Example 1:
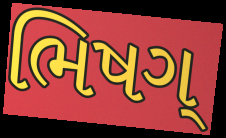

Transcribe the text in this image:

ભિષગ્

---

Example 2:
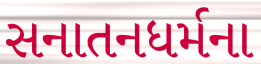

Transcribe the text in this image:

સનાતનધર્મના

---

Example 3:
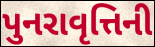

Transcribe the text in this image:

પુનરાવૃત્તિની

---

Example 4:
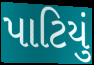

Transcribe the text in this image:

પાટિયું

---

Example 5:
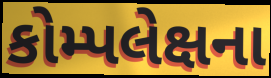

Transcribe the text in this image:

કોમ્પલેક્ષના